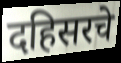
दहिसरचे